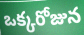
ఒక్కరోజున